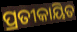
ପ୍ରତୀକାୟିତ